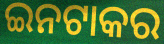
ଇନଟାକର